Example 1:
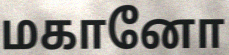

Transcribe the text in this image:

மகானோ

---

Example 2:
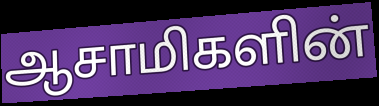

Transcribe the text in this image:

ஆசாமிகளின்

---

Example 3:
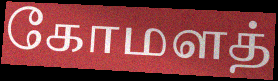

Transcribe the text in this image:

கோமளத்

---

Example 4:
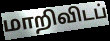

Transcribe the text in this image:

மாறிவிடப்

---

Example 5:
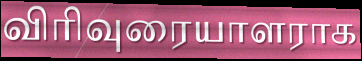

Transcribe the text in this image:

விரிவுரையாளராக